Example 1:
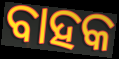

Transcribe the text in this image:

ବାହକ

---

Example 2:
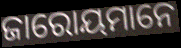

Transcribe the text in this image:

ଜାରୋୟମାନେ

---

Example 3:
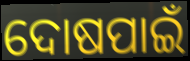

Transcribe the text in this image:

ଦୋଷପାଇଁ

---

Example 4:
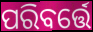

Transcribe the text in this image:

ପରିବର୍ତ୍ତେ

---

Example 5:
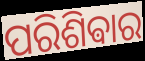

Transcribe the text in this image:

ପରିଶିଵାର